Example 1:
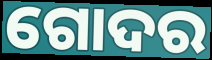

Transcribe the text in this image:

ଗୋଦର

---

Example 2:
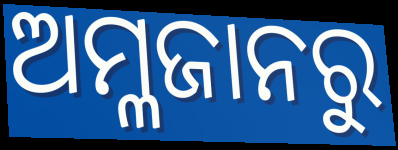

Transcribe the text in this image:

ଅମ୍ଳଜାନରୁ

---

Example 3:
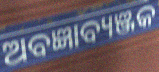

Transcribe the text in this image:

ଅବଜ୍ଞାବ୍ୟଞ୍ଜକ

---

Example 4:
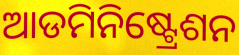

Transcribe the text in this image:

ଆଡମିନିଷ୍ଟ୍ରେଶନ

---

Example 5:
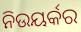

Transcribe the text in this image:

ନିଉୟର୍କର